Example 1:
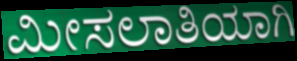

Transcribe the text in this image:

ಮೀಸಲಾತಿಯಾಗಿ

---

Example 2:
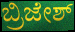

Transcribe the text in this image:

ಬ್ರಿಜೇಶ್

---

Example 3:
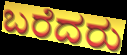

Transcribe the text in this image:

ಬರೆದರು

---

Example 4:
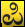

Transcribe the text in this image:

ಪಿ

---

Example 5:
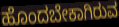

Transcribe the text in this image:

ಹೊಂದಬೇಕಾಗಿರುವ